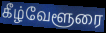
கீழ்வேளூரை